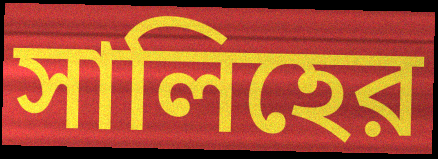
সালিহের